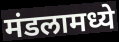
मंडलामध्ये